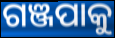
ଗଞ୍ଜପାକୁ